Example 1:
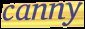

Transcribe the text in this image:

canny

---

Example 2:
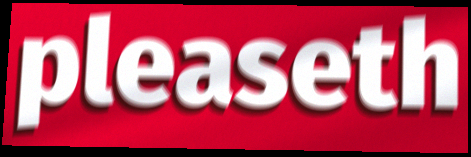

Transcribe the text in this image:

pleaseth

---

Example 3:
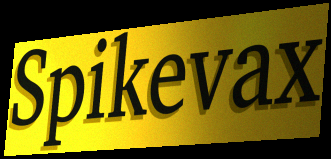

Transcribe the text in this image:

Spikevax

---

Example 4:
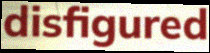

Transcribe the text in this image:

disfigured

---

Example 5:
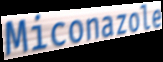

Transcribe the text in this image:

Miconazole